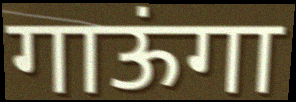
गाऊंगा